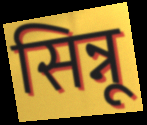
सिन्नू